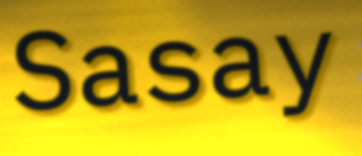
Sasay